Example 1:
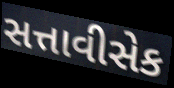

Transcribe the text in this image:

સત્તાવીસેક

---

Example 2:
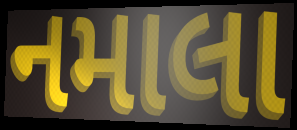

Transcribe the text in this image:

નમાલા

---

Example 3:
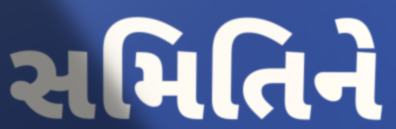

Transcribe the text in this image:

સમિતિને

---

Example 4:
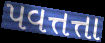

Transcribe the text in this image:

પવત્તત્તા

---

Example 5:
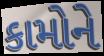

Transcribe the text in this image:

કામોને